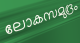
ലോകസമുദ്രം